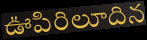
ఊపిరిలూదిన